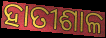
ହାତୀଶାଳ